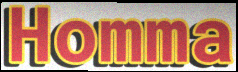
Homma